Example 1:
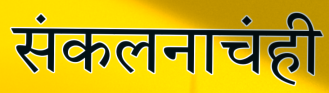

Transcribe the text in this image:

संकलनाचंही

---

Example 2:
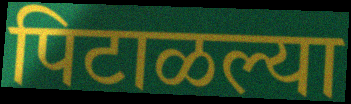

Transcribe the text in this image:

पिटाळल्या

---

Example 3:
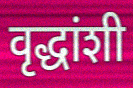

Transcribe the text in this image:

वृद्धांशी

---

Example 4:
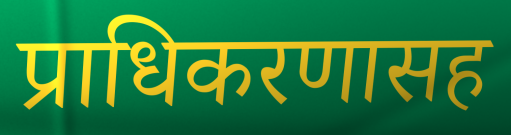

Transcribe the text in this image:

प्राधिकरणासह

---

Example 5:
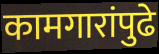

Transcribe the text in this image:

कामगारांपुढे